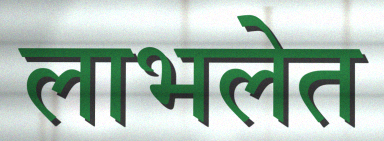
लाभलेत